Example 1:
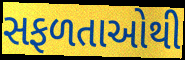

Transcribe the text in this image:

સફળતાઓથી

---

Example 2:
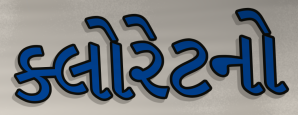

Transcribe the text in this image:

ક્લોરેટનો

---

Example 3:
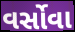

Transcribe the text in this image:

વર્સોવા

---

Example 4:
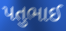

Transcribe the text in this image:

પતુભાઈ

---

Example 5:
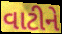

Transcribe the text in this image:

વાટીને